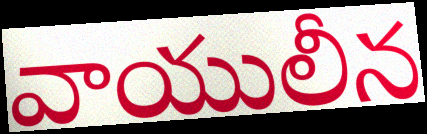
వాయులీన